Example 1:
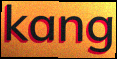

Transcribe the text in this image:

kang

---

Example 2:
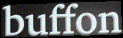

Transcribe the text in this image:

buffon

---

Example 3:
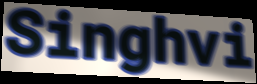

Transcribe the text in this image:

Singhvi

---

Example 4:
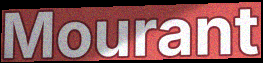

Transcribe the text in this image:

Mourant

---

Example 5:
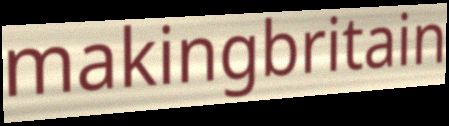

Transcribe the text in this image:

makingbritain